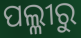
ପଲ୍ଳୀରୁ